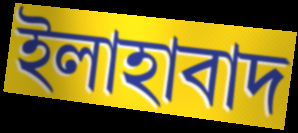
ইলাহাবাদ